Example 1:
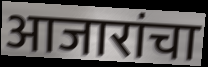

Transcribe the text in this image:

आजारांचा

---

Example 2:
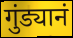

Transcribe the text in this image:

गुंड्यानं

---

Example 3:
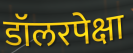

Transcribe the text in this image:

डॉलरपेक्षा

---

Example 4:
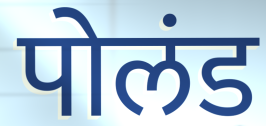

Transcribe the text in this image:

पोलंड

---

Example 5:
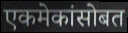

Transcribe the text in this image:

एकमेकांसोबत